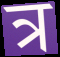
त्र